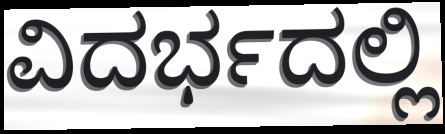
ವಿದರ್ಭದಲ್ಲಿ